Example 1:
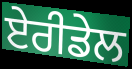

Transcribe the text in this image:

ਏਰੀਡੇਲ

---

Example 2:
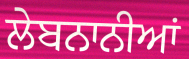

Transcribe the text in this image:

ਲੇਬਨਾਨੀਆਂ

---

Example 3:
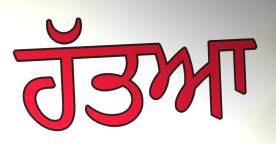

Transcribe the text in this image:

ਹੱਤਆ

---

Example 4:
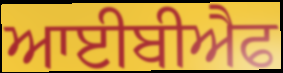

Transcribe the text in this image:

ਆਈਬੀਐਫ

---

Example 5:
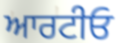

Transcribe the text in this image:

ਆਰਟੀਓ